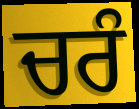
ਚਰੰ